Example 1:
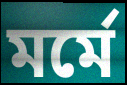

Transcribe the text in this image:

মৰ্মে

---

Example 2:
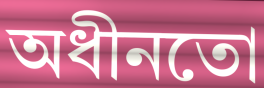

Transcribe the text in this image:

অধীনতো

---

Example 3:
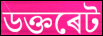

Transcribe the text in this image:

ডক্তৰেট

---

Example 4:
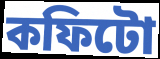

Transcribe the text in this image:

কফিটো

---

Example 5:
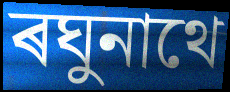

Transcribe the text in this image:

ৰঘুনাথে